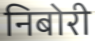
निबोरी